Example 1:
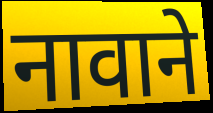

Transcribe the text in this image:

नावाने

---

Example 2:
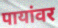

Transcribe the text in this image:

पायांवर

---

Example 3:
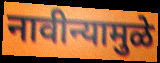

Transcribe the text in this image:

नावीन्यामुळे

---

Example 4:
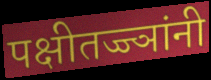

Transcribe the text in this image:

पक्षीतज्ज्ञांनी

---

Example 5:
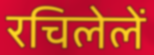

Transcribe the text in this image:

रचिलेलें